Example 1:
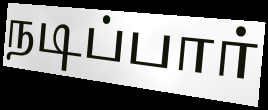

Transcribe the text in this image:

நடிப்பார்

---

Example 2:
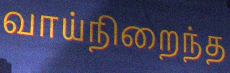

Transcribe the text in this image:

வாய்நிறைந்த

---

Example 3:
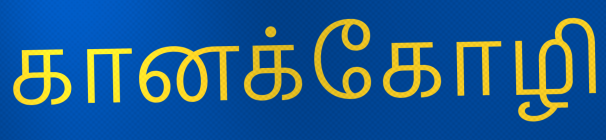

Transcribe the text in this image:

கானக்கோழி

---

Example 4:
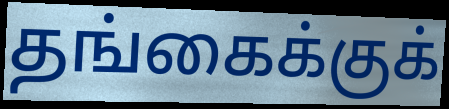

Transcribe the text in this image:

தங்கைக்குக்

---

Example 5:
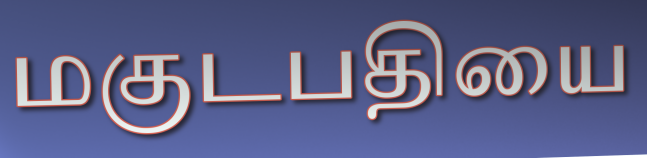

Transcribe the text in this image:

மகுடபதியை